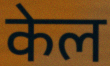
केल